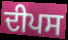
ਦੀਪਸ